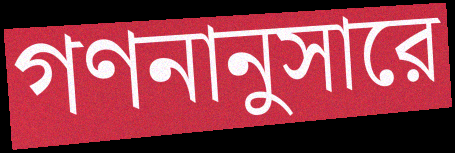
গণনানুসারে